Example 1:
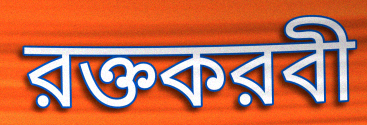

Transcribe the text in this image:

রক্তকরবী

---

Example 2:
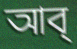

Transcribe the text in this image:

আব্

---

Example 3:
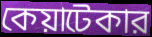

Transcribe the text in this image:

কেয়াটেকার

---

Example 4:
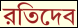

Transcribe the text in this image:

রতিদেব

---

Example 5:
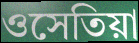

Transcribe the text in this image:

ওসেতিয়া